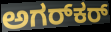
ಅಗರ್‌ಕರ್